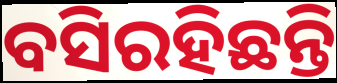
ବସିରହିଛନ୍ତି